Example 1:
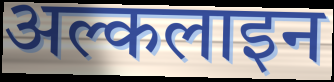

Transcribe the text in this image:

अल्कलाइन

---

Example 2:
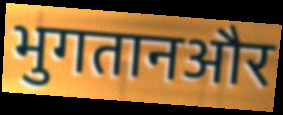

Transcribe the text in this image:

भुगतानऔर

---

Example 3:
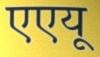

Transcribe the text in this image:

एएयू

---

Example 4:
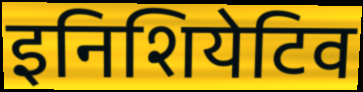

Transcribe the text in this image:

इनिशियेटिव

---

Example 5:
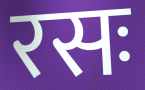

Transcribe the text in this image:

रसः